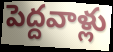
పెద్దవాళ్లు